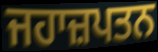
ਜਹਾਜ਼ਪਤਨ